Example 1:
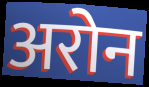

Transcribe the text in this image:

अरोन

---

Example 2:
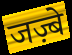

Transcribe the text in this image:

जज़्बे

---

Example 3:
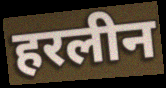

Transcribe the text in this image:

हरलीन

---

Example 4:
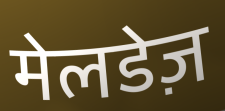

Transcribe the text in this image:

मेलडेज़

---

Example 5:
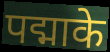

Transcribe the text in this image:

पद्माके